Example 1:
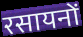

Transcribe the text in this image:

रसायनों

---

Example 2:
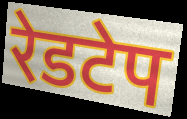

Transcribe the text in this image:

रेडटेप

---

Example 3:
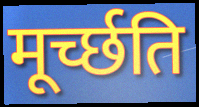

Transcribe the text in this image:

मूर्च्छति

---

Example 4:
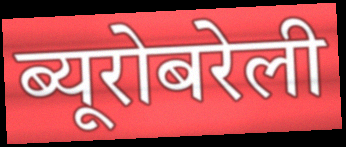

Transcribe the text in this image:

ब्यूरोबरेली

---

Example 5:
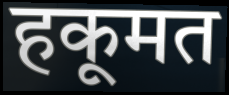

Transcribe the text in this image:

हकूमत